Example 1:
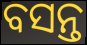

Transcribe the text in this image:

ବସନ୍ତ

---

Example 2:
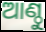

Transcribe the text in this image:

ଆଣ୍ଠୁ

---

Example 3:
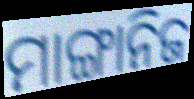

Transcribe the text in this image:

ମାଙ୍ଗାନିଜ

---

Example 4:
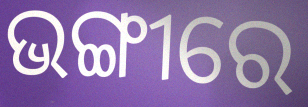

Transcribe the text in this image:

ଭଙ୍ଗୀରେ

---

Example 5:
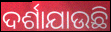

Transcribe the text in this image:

ଦର୍ଶାଯାଉଛି